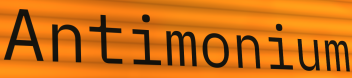
Antimonium